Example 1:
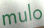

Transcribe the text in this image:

mulo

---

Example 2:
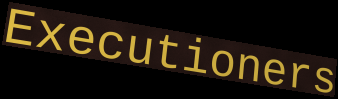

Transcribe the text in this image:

Executioners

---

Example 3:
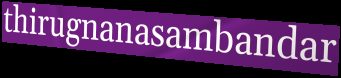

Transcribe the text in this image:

thirugnanasambandar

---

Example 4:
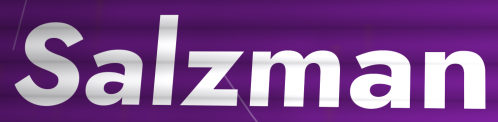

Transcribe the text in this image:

Salzman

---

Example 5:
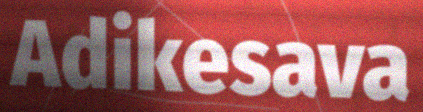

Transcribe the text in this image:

Adikesava